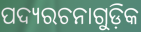
ପଦ୍ୟରଚନାଗୁଡ଼ିକ